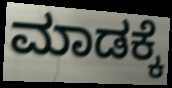
ಮಾಡಕ್ಕೆ